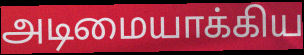
அடிமையாக்கிய